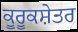
ਕੂਰੂਕਸ਼ੇਤਰ